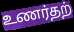
உணர்தற்